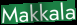
Makkala